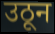
उठून